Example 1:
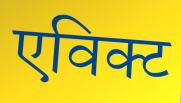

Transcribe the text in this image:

एविक्ट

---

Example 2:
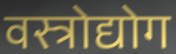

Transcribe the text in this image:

वस्त्रोद्योग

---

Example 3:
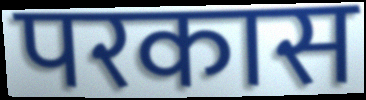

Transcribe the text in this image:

परकास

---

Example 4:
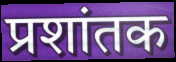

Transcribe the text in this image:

प्रशांतक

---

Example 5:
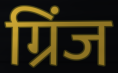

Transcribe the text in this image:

ग्रिंज